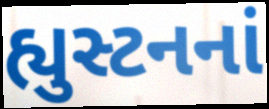
હ્યુસ્ટનનાં